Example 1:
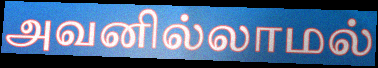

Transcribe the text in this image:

அவனில்லாமல்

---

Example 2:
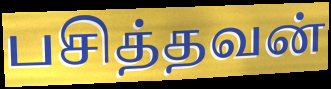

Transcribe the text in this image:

பசித்தவன்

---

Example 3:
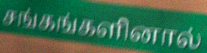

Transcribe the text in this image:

சங்கங்களினால்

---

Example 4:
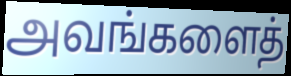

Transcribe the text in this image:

அவங்களைத்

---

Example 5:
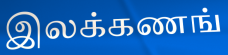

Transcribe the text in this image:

இலக்கணங்